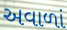
અવાળાં